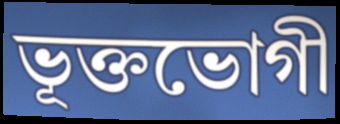
ভূক্তভোগী